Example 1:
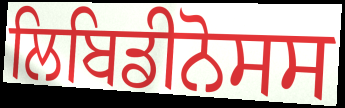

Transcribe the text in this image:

ਲਿਬਿਡੀਨੋਸਸ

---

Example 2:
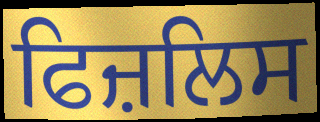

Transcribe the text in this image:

ਫਿਜ਼ਲਿਸ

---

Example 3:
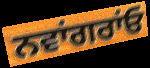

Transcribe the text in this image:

ਨਵਾਂਗਰਾਂਓ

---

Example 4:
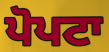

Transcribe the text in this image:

ਪੋਪਟਾ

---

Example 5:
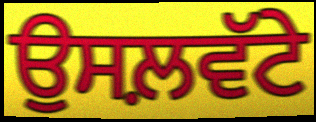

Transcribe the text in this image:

ਉਸਲ਼ਵੱਟੇ